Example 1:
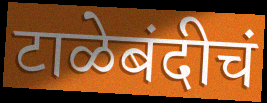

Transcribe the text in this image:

टाळेबंदीचं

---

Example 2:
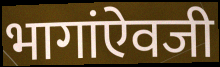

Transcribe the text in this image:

भागांऐवजी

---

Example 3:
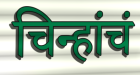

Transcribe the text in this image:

चिन्हांचं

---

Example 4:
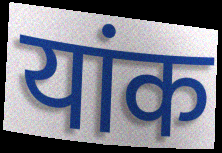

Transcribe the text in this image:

यांक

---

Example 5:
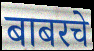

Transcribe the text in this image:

बाबरचे